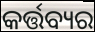
କର୍ତ୍ତବ୍ୟର